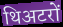
थिअटरों